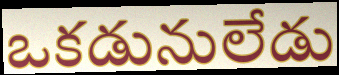
ఒకడునులేడు